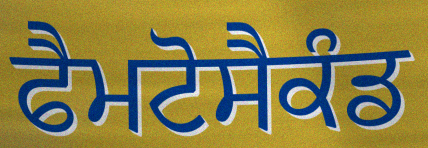
ਫੈਮਟੋਸੈਕੰਡ